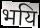
भयि